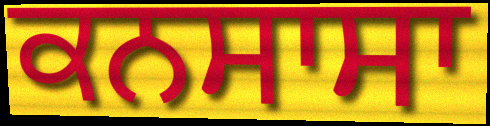
ਕਨਸਾਸਾ